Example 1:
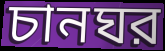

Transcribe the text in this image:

চানঘর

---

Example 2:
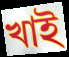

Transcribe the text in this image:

খাই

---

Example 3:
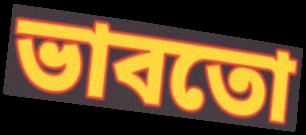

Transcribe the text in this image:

ভাবতো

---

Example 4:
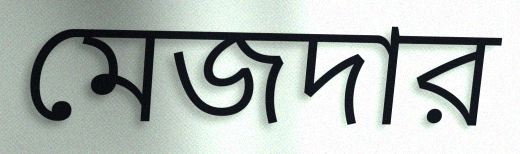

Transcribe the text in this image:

মেজদার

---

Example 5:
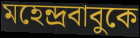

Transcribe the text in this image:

মহেন্দ্রবাবুকে